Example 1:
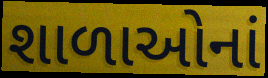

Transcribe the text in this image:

શાળાઓનાં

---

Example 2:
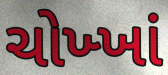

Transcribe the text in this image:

ચોખ્ખાં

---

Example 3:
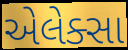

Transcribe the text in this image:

એલેક્સા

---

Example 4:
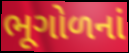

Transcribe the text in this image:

ભૂગોળનાં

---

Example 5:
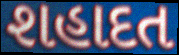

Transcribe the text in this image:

શહાદત